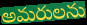
అమరులను